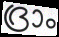
ദ്രാം